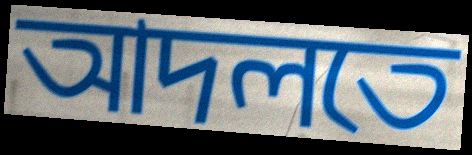
আদলতে